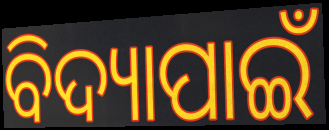
ବିଦ୍ୟାପାଇଁ